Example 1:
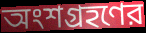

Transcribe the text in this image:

অংশগ্রহণের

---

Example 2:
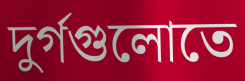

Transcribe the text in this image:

দুর্গগুলোতে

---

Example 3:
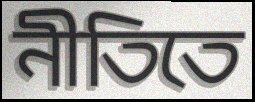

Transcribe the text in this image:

নীতিতে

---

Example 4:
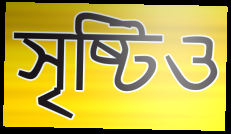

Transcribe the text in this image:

সৃষ্টিও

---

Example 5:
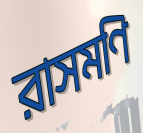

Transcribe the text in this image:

রাসমণি